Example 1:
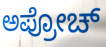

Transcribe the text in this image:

ಅಪ್ರೋಚ್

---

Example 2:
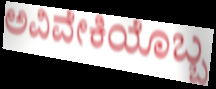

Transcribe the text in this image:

ಅವಿವೇಕಿಯೊಬ್ಬ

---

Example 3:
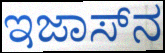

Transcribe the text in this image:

ಇಜಾಸ್‌ನ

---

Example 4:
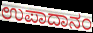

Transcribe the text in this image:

ಉಪಾದಾನಂ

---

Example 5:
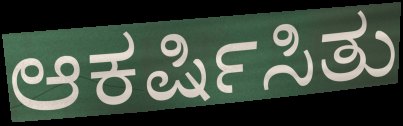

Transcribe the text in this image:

ಆಕರ್ಷಿಸಿತು